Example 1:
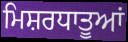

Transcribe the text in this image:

ਮਿਸ਼ਰਧਾਤੂਆਂ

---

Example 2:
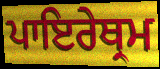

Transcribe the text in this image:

ਪਾਇਰੇਥ੍ਰਮ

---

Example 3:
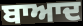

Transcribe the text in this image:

ਬਾਆਦ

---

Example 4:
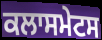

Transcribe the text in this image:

ਕਲਾਸਮੇਟਸ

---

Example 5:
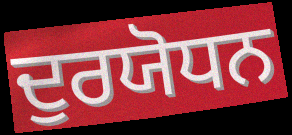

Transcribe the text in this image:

ਦੁਰਯੋਧਨ